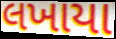
લખાયા